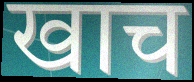
खाच